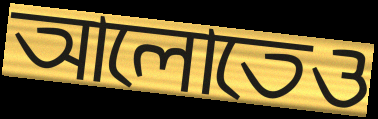
আলোতেও